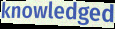
knowledged